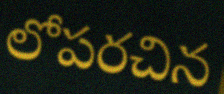
లోపరచిన